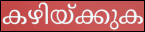
കഴിയ്ക്കുക